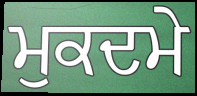
ਮੁਕਦਮੇ